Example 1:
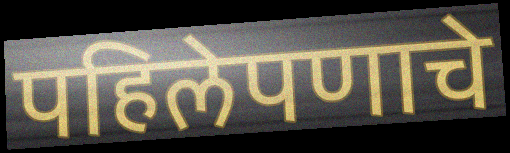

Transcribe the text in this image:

पहिलेपणाचे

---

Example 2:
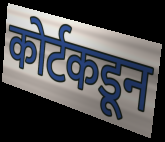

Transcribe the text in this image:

कोर्टकडून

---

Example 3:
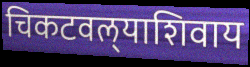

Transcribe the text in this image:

चिकटवल्याशिवाय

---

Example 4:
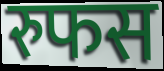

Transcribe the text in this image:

रुफस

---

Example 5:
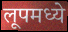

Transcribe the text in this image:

लूपमध्ये